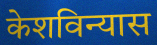
केशविन्यास